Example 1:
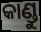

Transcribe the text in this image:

କାଣ୍ଡୁ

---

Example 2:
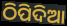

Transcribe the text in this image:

ଠିପିଦିଆ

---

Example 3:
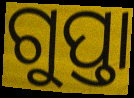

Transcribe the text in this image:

ଗୁପ୍ତା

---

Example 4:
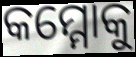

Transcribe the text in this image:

କମ୍ମୋକୁ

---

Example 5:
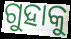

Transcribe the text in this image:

ଗୁହାକୁ